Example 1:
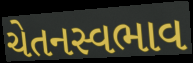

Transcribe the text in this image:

ચેતનસ્વભાવ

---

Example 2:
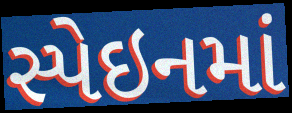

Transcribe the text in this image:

સ્પેઇનમાં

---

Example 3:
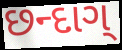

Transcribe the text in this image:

છન્દાગ્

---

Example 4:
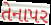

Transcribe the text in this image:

તેનાપર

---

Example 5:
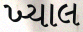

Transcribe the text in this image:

ખ્યાલ